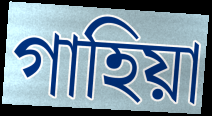
গাহিয়া